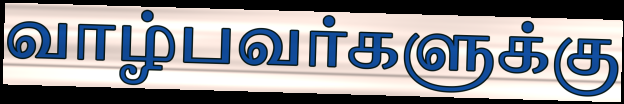
வாழ்பவர்களுக்கு